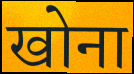
खोना